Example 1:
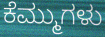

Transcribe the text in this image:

ಕೆಮ್ಮುಗಳು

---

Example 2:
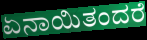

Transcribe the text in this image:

ಏನಾಯಿತಂದರೆ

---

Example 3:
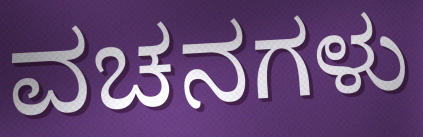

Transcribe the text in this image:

ವಚನಗಳು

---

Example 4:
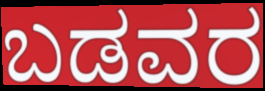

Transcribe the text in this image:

ಬಡವರ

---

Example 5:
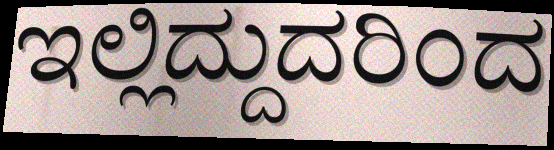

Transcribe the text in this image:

ಇಲ್ಲಿದ್ದುದರಿಂದ